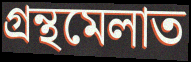
গ্ৰন্থমেলাত